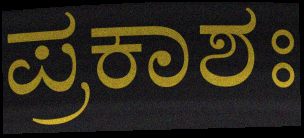
ಪ್ರಕಾಶಃ